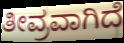
ತೀವ್ರವಾಗಿದೆ